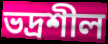
ভদ্রশীল